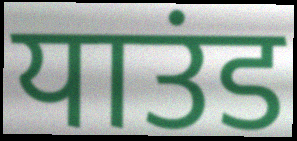
याउंड